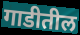
गाडीतील